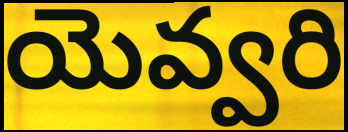
యెవ్వరి